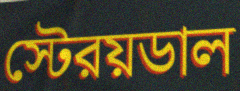
স্টেরয়ডাল